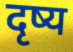
दृष्य